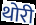
थोरी